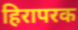
हिरापरक